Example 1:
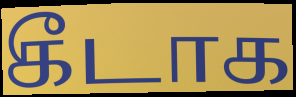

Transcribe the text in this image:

கீடாக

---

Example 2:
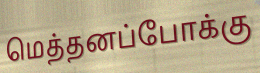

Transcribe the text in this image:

மெத்தனப்போக்கு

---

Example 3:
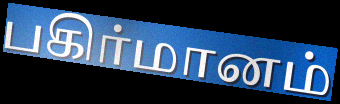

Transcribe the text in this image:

பகிர்மானம்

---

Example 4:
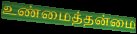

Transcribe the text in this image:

உண்மைத்தன்மை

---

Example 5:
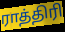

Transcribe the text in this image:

ராத்திரி